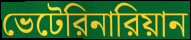
ভেটেরিনারিয়ান